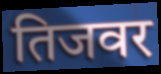
तिजवर